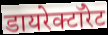
डायरेक्टॉरेट